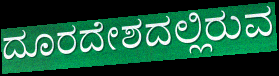
ದೂರದೇಶದಲ್ಲಿರುವ